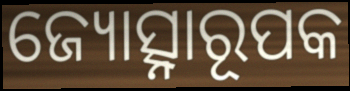
ଜ୍ୟୋତ୍ସ୍ନାରୂପକ